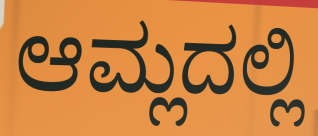
ಆಮ್ಲದಲ್ಲಿ